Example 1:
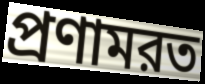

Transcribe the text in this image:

প্রণামরত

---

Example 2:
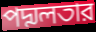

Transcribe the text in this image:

পদ্মলতার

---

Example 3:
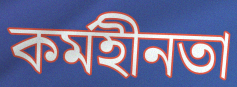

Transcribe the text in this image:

কর্মহীনতা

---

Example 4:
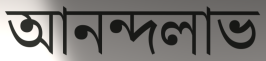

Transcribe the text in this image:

আনন্দলাভ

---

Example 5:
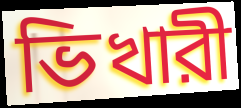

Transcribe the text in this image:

ভিখারী